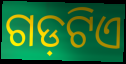
ଗଡ଼ଟିଏ